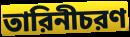
তারিনীচরণ